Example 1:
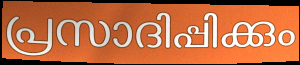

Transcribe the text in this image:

പ്രസാദിപ്പിക്കും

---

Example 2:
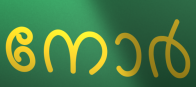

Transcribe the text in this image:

നോർ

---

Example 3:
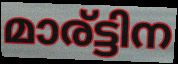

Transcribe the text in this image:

മാര്ട്ടിന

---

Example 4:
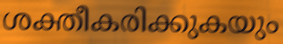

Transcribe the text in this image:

ശക്തീകരിക്കുകയും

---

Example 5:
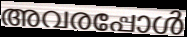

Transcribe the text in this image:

അവരപ്പോൾ